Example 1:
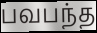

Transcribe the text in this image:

பவபந்த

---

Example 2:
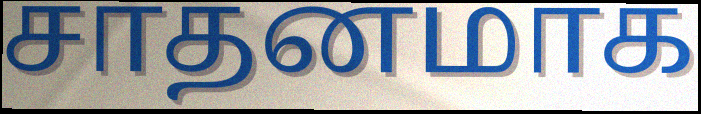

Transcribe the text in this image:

சாதனமாக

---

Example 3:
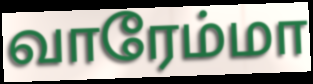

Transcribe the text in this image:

வாரேம்மா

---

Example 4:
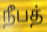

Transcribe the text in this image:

நீபத்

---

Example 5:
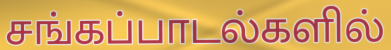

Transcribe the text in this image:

சங்கப்பாடல்களில்